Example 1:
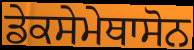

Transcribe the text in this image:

ਡੇਕਸੇਮੇਥਾਸੋਨ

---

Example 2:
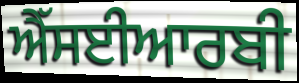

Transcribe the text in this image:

ਐੱਸਈਆਰਬੀ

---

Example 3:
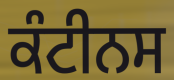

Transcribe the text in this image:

ਕੰਟੀਨਸ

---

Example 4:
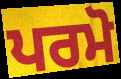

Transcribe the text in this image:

ਪਰਮੋ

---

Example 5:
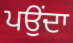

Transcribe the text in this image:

ਪਉਂਦਾ